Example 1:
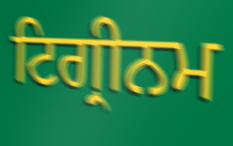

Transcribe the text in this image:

ਟਿਗ੍ਰੀਨਮ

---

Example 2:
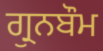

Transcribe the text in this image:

ਗ੍ਰੁਨਬੌਮ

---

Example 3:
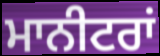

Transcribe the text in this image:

ਮਾਨੀਟਰਾਂ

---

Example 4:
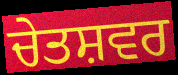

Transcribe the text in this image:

ਚੇਤਸ਼ਵਰ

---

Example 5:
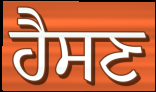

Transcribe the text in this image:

ਹੈਸਣ